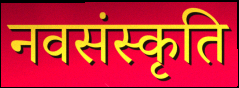
नवसंस्कृति